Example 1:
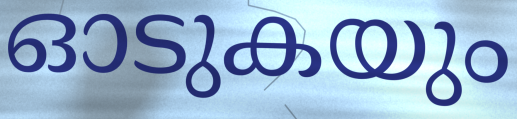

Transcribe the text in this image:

ഓടുകയും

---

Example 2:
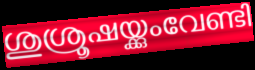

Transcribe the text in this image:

ശുശ്രൂഷയ്ക്കുംവേണ്ടി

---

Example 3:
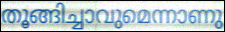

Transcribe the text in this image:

തൂങ്ങിച്ചാവുമെന്നാണു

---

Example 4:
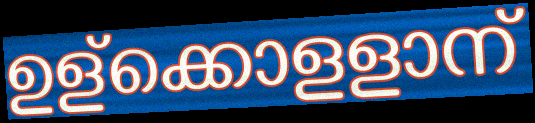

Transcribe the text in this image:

ഉള്ക്കൊളളാന്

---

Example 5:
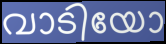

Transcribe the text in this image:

വാടിയോ